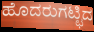
ಹೊದರುಗಟ್ಟಿದ